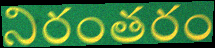
నిరంతరం